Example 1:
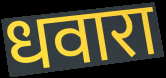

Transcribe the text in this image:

धवारा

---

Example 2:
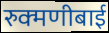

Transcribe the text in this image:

रुक्मणीबाई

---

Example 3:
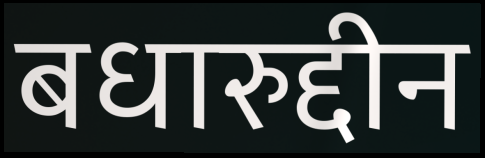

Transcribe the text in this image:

बधारुद्दीन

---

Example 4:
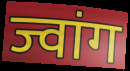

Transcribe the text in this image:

ज्वांग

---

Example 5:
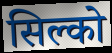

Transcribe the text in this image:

सिल्को